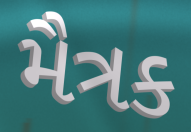
મૈત્રક